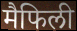
मैफिली